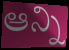
ఆన్ని